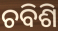
ଚବିଶି